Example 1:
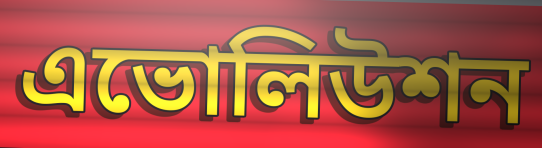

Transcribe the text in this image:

এভোলিউশন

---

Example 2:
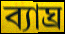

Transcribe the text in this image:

ব্যাঘ্র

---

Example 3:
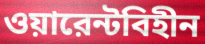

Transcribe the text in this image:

ওয়ারেন্টবিহীন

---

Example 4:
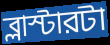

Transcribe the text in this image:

ব্লাস্টারটা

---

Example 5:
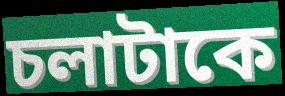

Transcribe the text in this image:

চলাটাকে